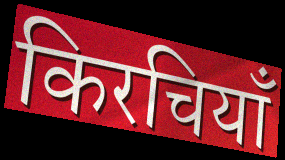
किरचियाँ